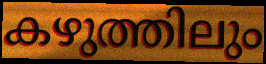
കഴുത്തിലും